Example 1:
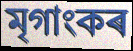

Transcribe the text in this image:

মৃগাংকৰ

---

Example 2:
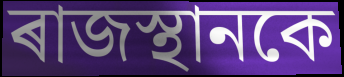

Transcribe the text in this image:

ৰাজস্থানকে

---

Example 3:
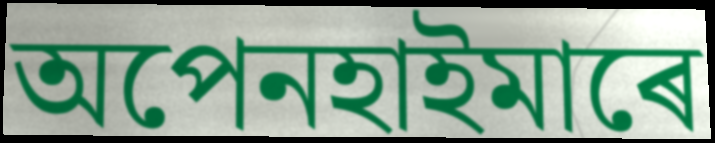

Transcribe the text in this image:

অপেনহাইমাৰে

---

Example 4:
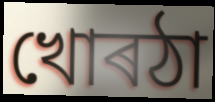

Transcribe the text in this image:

খোৰঠা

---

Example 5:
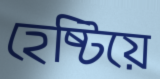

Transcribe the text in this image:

হেষ্টিয়ে